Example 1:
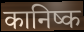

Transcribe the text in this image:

कानिष्क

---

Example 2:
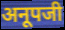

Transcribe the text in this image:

अनूपजी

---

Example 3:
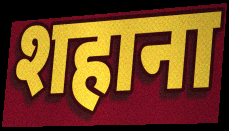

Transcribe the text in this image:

शहाना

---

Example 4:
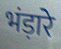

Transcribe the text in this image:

भंड़ारे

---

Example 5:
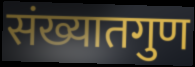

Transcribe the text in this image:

संख्यातगुण